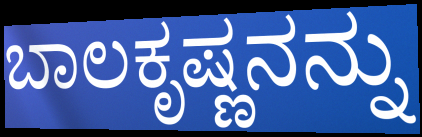
ಬಾಲಕೃಷ್ಣನನ್ನು